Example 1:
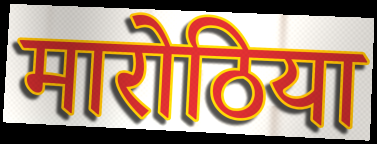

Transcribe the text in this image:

मारोठिया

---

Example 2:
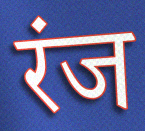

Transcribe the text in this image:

रंज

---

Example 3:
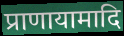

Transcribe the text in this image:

प्राणायामादि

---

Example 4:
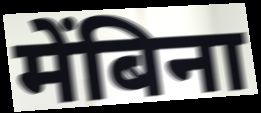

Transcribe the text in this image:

मेंबिना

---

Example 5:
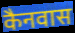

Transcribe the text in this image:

कैनवास